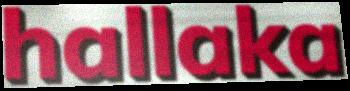
hallaka